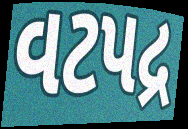
વટપદ્ર